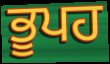
ਭੂਪਹ